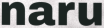
naru